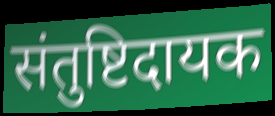
संतुष्टिदायक